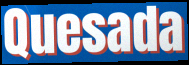
Quesada